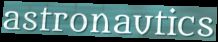
astronautics